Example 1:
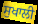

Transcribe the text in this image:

ਸੁਖਾਲੀ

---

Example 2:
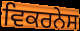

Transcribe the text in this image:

ਵਿਕਰਨੇਸ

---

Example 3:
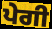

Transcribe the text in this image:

ਪੇਗੀ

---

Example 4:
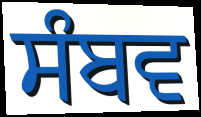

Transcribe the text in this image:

ਸੰਬਵ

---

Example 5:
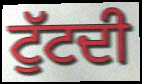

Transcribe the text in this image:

ਟੁੱਟਦੀ